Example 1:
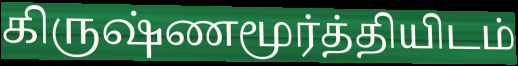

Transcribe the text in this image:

கிருஷ்ணமூர்த்தியிடம்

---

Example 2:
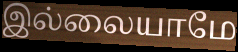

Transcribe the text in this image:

இல்லையாமே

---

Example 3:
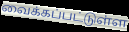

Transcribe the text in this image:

வைக்கப்பட்டுள்ள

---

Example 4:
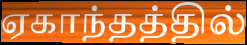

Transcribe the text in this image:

ஏகாந்தத்தில்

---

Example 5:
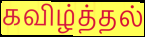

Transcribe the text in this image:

கவிழ்த்தல்